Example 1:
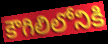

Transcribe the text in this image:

కౌగిలిలోనికి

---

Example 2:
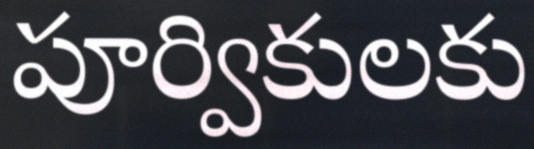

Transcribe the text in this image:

పూర్వికులకు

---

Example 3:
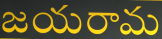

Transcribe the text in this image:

జయరామ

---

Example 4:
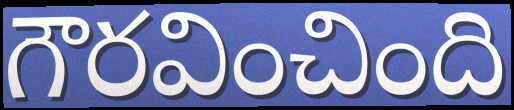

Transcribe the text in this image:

గౌరవించింది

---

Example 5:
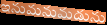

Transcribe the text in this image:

ఇనుమనుమడును